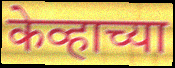
केव्हाच्या